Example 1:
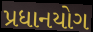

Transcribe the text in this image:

પ્રધાનયોગ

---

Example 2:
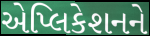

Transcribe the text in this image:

એપ્લિકેશનને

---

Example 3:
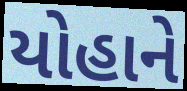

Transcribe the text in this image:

યોહાને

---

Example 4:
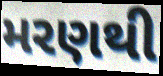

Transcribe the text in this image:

મરણથી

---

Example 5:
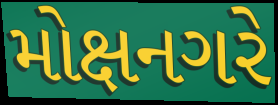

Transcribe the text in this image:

મોક્ષનગરે